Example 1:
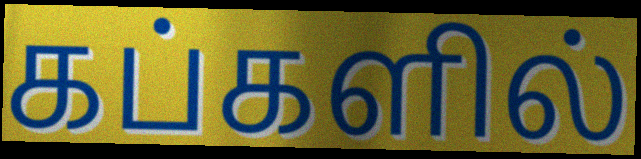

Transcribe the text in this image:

கப்களில்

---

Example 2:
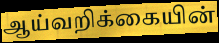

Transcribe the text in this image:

ஆய்வறிக்கையின்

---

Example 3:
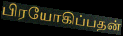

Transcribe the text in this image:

பிரயோகிப்பதன்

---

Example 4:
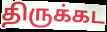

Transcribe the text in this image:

திருக்கட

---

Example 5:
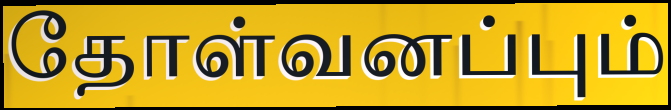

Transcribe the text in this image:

தோள்வனப்பும்